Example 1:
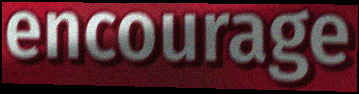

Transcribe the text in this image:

encourage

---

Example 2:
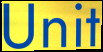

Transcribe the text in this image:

Unit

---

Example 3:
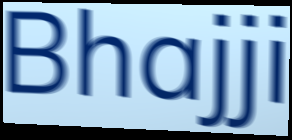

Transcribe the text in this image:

Bhajji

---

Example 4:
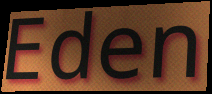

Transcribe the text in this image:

Eden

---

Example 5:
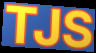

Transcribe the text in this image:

TJS